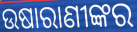
ଉଷାରାଣୀଙ୍କର